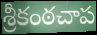
శ్రీకంఠచాప